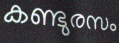
കണ്ടുരസം